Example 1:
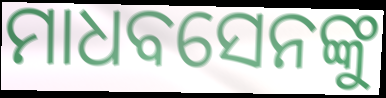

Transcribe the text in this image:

ମାଧବସେନଙ୍କୁ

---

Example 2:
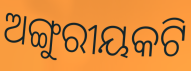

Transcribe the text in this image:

ଅଙ୍ଗୁରୀୟକଟି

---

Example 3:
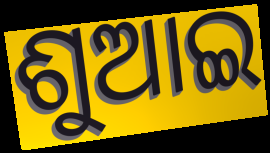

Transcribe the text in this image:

ଶୁଆଇ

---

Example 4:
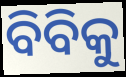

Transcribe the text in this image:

ବିବିକୁ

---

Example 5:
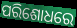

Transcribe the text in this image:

ପରିଶୋଧରେ